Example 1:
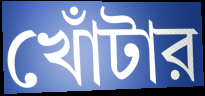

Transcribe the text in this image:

খোঁটার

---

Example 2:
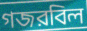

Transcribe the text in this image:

গজরবিল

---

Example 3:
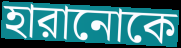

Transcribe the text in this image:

হারানোকে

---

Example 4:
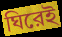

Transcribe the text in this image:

ঘিরেই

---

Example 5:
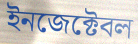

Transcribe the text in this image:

ইনজেক্টেবল